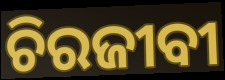
ଚିରଜୀବୀ